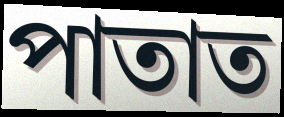
পাতাত